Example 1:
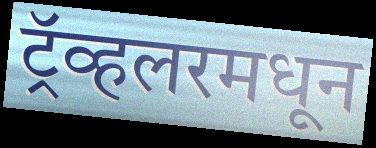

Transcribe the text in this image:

ट्रॅव्हलरमधून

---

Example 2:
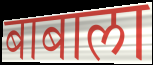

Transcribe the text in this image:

बाबाला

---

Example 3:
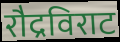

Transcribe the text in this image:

रौद्रविराट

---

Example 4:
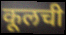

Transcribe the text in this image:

कूलची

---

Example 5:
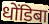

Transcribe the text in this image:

धोंडिबा